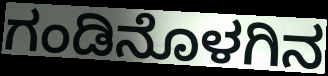
ಗಂಡಿನೊಳಗಿನ